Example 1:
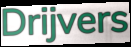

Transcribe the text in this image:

Drijvers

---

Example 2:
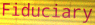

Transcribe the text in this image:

Fiduciary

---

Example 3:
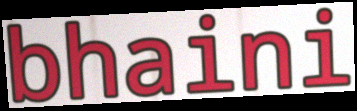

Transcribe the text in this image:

bhaini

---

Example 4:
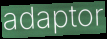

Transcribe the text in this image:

adaptor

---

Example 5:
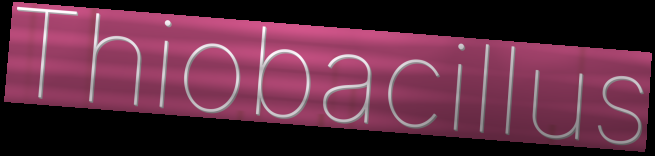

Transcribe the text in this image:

Thiobacillus